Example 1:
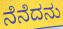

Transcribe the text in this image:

ನೆನೆದನು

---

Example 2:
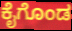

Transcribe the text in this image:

ಕೈಗೊಂಡ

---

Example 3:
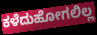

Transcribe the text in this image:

ಕಳೆದುಹೋಗಲಿಲ್ಲ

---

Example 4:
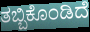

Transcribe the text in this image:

ತಬ್ಬಿಕೊಂಡಿದೆ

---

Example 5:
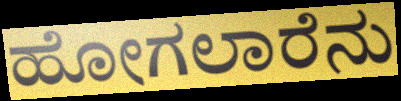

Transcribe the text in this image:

ಹೋಗಲಾರೆನು